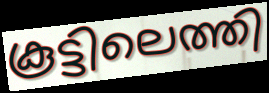
കൂട്ടിലെത്തി